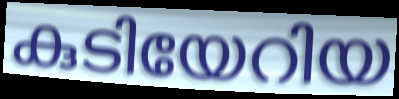
കുടിയേറിയ